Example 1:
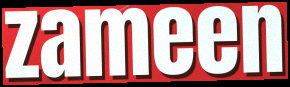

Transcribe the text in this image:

zameen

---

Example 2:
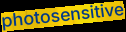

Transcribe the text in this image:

photosensitive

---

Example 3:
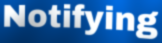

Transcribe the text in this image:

Notifying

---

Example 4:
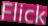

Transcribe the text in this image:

Flick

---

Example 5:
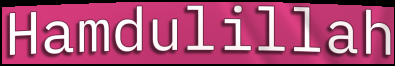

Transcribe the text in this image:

Hamdulillah